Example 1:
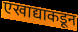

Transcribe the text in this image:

एखाद्याकडून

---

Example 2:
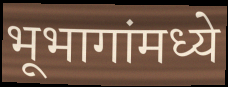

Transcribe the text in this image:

भूभागांमध्ये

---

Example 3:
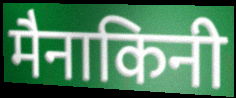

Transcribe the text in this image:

मैनाकिनी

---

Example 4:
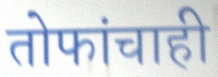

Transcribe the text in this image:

तोफांचाही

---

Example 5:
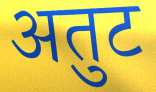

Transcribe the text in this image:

अतुट